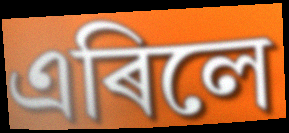
এৰিলে